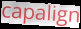
capalign